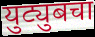
युट्युबचा